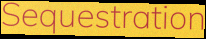
Sequestration